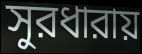
সুরধারায়